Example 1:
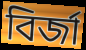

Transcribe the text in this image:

বির্জা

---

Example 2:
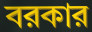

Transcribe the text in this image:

বরকার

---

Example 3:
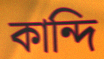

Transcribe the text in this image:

কান্দি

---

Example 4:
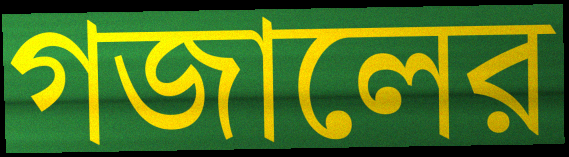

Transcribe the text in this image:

গজালের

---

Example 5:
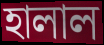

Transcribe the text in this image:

হালাল